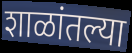
शाळांतल्या